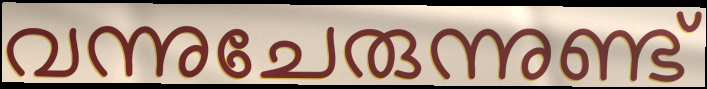
വന്നുചേരുന്നുണ്ട്